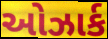
ઓઝાર્ક